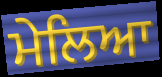
ਮੇਲਿਆ